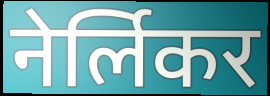
नेर्लिकर